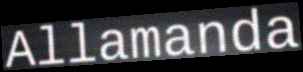
Allamanda